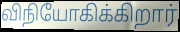
விநியோகிக்கிறார்